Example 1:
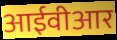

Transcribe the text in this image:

आईवीआर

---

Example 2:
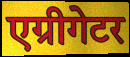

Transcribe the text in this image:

एग्रीगेटर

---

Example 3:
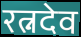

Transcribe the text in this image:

रत्नदेव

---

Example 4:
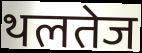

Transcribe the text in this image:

थलतेज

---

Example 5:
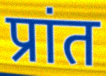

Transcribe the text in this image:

प्रांत